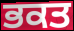
ਭਕਤ